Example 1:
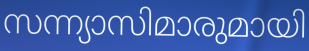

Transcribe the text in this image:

സന്ന്യാസിമാരുമായി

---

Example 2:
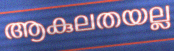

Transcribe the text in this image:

ആകുലതയല്ല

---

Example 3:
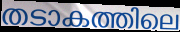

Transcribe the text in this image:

തടാകത്തിലെ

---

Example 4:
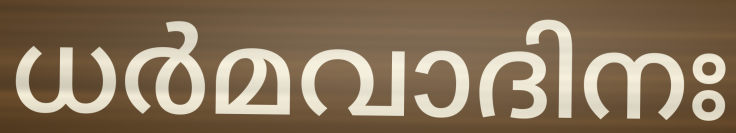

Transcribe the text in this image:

ധർമവാദിനഃ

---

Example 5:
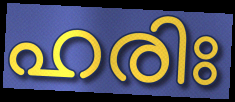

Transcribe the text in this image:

ഹരിഃ